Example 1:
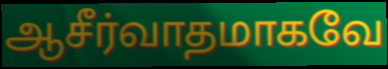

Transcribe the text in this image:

ஆசீர்வாதமாகவே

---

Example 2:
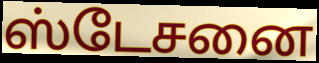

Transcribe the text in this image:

ஸ்டேசனை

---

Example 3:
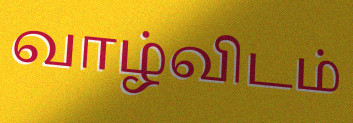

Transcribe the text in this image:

வாழ்விடம்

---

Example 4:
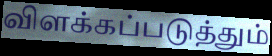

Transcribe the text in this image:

விளக்கப்படுத்தும்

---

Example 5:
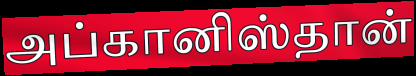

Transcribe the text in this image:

அப்கானிஸ்தான்